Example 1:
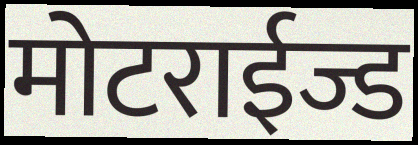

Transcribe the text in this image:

मोटराईज्ड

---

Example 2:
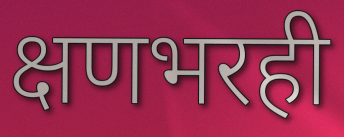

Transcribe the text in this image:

क्षणभरही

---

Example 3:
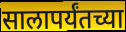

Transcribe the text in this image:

सालापर्यंतच्या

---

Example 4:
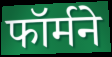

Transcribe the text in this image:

फॉर्मने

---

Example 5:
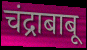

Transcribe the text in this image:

चंद्राबाबू